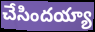
చేసిందయ్యా